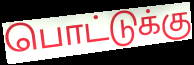
பொட்டுக்கு